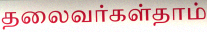
தலைவர்கள்தாம்